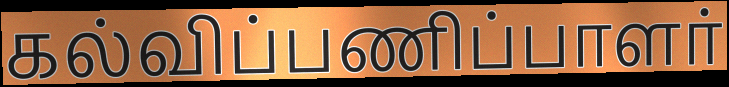
கல்விப்பணிப்பாளர்